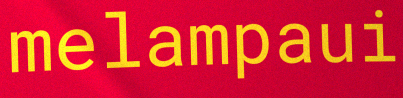
melampaui